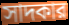
সাদকার